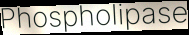
Phospholipase